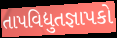
તાપવિદ્યુતજ્ઞાપકો